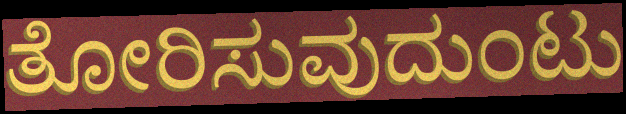
ತೋರಿಸುವುದುಂಟು